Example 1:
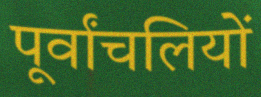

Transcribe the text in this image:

पूर्वांचलियों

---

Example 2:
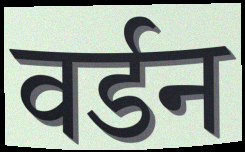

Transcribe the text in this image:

वर्डन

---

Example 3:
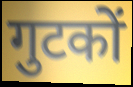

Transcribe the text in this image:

गुटकों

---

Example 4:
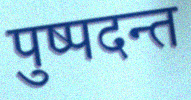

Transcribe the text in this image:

पुष्पदन्त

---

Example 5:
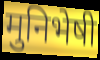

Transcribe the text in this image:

मुनिभेषी